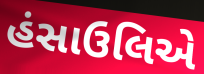
હંસાઉલિએ